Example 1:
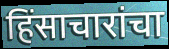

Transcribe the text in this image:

हिंसाचारांचा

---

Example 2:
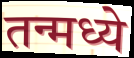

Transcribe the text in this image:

तन्मध्ये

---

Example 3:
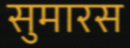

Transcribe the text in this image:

सुमारस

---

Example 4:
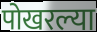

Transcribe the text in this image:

पोखरल्या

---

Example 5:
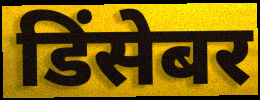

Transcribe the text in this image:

डिंसेबर